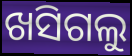
ଖସିଗଲୁ